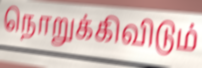
நொறுக்கிவிடும்